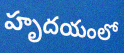
హృదయంలో